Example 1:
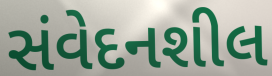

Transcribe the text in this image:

સંવેદનશીલ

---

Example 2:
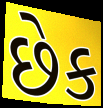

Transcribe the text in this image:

છેક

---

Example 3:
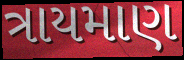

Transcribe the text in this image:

ત્રાયમાણ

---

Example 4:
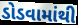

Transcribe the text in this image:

ડોડવામાંથી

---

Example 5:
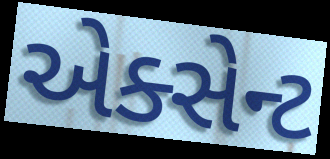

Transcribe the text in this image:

એક્સેન્ટ